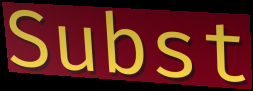
Subst